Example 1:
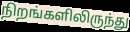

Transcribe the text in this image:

நிறங்களிலிருந்து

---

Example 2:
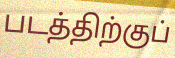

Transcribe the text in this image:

படத்திற்குப்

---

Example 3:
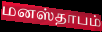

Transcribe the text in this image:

மனஸ்தாபம்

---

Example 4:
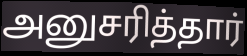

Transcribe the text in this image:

அனுசரித்தார்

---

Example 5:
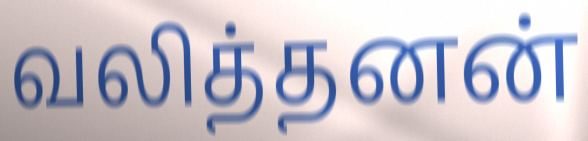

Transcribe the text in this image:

வலித்தனன்